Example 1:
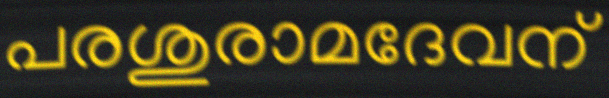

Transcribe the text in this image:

പരശുരാമദേവന്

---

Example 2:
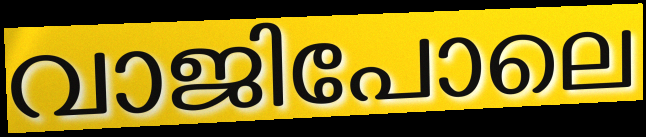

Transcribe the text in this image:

വാജിപോലെ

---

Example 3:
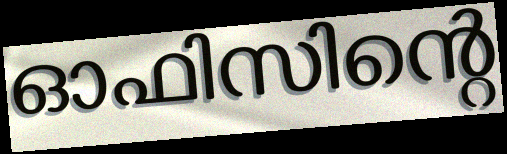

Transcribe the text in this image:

ഓഫിസിന്റെ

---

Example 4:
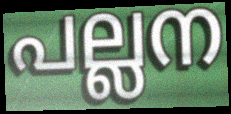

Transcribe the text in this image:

പല്ലന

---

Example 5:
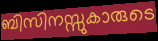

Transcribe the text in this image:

ബിസിനസ്സുകാരുടെ